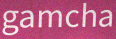
gamcha